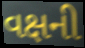
વક્ષની